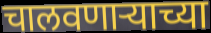
चालवणार्‍याच्या